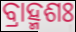
ବ୍ରାହ୍ମଶଃ